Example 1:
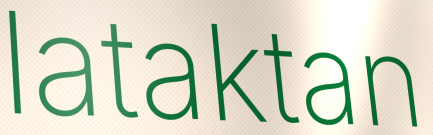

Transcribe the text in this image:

lataktan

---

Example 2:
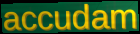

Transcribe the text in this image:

accudam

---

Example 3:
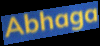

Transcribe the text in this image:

Abhaga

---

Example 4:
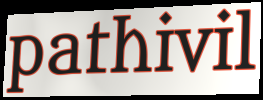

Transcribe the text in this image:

pathivil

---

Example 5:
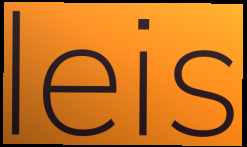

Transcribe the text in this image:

leis